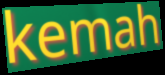
kemah